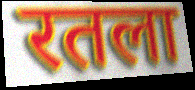
रतला